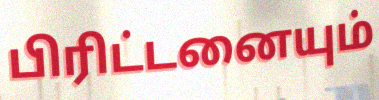
பிரிட்டனையும்